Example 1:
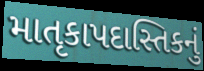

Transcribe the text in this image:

માતૃકાપદાસ્તિકનું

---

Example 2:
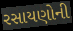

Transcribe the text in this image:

રસાયણોની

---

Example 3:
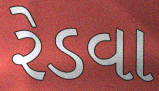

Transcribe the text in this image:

રેડવા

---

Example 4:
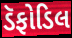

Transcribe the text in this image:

ડૅફોડિલ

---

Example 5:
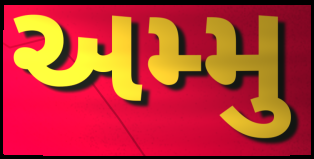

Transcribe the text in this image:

અમ્મુ